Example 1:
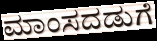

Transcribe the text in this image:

ಮಾಂಸದಡುಗೆ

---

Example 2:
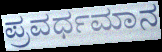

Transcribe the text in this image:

ಪ್ರವರ್ಧಮಾನ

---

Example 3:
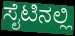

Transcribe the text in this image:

ಸೈಟಿನಲ್ಲಿ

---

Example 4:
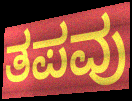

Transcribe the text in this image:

ತಪವು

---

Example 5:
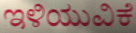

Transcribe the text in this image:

ಇಳಿಯುವಿಕೆ